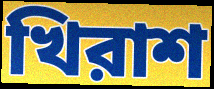
খিরাশ